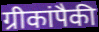
ग्रीकांपैकी